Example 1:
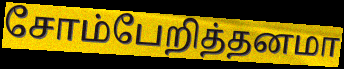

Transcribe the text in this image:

சோம்பேறித்தனமா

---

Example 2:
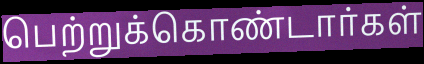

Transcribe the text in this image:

பெற்றுக்கொண்டார்கள்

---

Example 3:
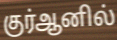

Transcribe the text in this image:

குர்ஆனில்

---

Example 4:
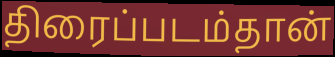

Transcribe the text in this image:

திரைப்படம்தான்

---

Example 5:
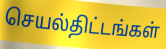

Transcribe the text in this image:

செயல்திட்டங்கள்